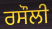
ਰਸੌਲੀ